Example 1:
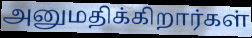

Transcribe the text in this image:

அனுமதிக்கிறார்கள்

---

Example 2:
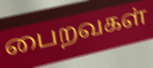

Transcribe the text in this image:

பைறவகள்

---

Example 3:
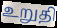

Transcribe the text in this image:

உறுதி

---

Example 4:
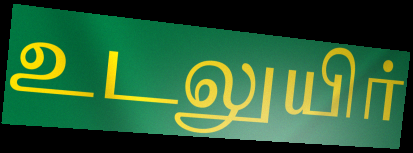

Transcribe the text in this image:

உடலுயிர்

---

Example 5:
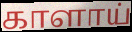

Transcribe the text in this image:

காளாய்